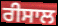
ਰੀਸਾਲ